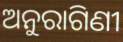
ଅନୁରାଗିଣୀ